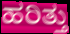
ಹರಿತ್ತು